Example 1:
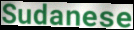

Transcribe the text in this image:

Sudanese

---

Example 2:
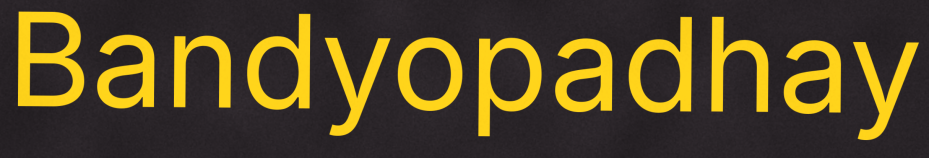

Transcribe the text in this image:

Bandyopadhay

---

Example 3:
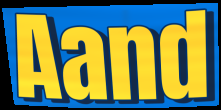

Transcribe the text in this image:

Aand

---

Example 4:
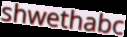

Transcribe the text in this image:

shwethabc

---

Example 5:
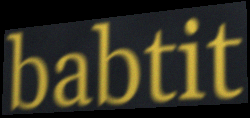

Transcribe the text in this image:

babtit